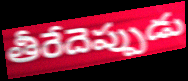
తీరేదెప్పుడు